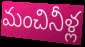
మంచినీళ్ల